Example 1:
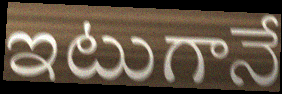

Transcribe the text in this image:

ఇటుగానే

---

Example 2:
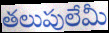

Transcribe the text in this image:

తలుపులేమీ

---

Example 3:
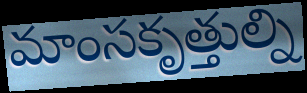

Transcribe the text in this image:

మాంసకృత్తుల్ని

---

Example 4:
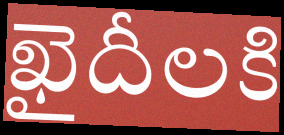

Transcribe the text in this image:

ఖైదీలకి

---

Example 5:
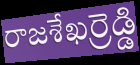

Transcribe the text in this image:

రాజశేఖర్రెడ్డి